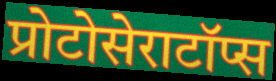
प्रोटोसेराटॉप्स